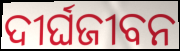
ଦୀର୍ଘଜୀବନ